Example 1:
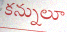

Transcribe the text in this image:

కన్నులూ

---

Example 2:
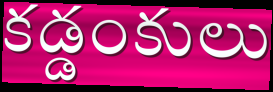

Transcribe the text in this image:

కడ్డంకులు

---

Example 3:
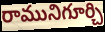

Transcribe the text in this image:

రామునిగూర్చి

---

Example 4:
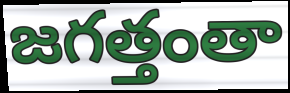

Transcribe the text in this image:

జగత్తంతా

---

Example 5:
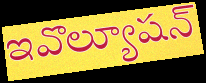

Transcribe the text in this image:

ఇవొల్యూషన్